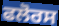
ਫਲੋਰਸ